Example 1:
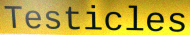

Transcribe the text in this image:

Testicles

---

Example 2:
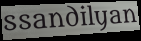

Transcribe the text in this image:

ssandilyan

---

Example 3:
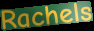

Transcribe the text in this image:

Rachels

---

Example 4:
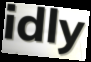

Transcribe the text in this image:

idly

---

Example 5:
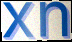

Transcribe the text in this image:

xn